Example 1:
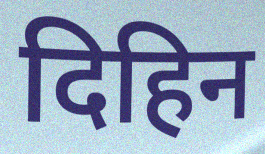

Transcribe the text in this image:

दिहिन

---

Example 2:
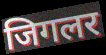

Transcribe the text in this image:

जिगलर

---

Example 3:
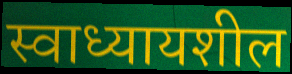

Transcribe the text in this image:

स्वाध्यायशील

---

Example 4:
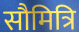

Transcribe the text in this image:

सौमित्रि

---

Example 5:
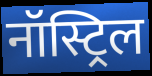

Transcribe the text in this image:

नॉस्ट्रिल